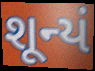
શૂન્યં